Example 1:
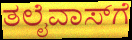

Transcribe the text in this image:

ತಲೈವಾಸ್‌ಗೆ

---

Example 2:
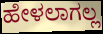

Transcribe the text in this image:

ಹೇಳಲಾಗಲ್ಲ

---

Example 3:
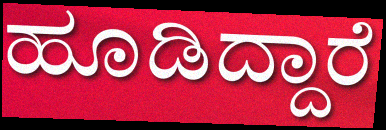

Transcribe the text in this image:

ಹೂಡಿದ್ದಾರೆ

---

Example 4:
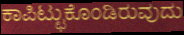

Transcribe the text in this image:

ಕಾಪಿಟ್ಟುಕೊಂಡಿರುವುದು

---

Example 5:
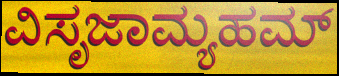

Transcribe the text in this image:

ವಿಸೃಜಾಮ್ಯಹಮ್